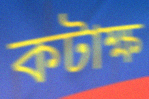
কটাক্ষ